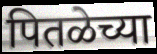
पितळेच्या